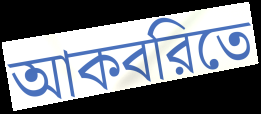
আকবরিতে